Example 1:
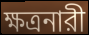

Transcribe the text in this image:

ক্ষত্রনারী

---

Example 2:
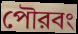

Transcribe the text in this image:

পৌরবং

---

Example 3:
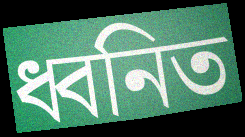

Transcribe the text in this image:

ধ্বনিত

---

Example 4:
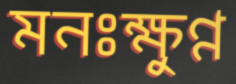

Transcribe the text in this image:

মনঃক্ষুণ্ন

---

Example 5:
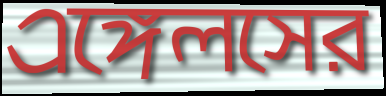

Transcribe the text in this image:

এঙ্গেলসের